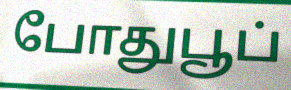
போதுபூப்